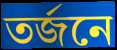
তর্জনে